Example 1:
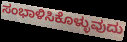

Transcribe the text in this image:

ಸಂಭಾಳಿಸಿಕೊಳ್ಳುವುದು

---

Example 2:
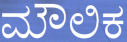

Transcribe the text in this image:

ಮೌಲಿಕ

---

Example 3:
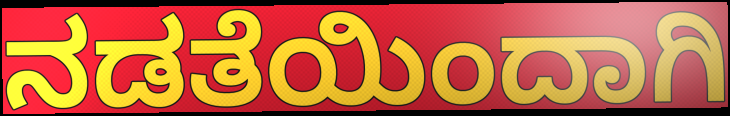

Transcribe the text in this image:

ನಡತೆಯಿಂದಾಗಿ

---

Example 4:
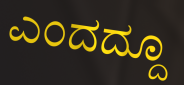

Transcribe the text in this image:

ಎಂದದ್ದೂ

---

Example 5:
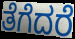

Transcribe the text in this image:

ತೆಗೆದರೆ